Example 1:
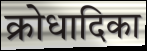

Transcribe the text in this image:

क्रोधादिका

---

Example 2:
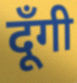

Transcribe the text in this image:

दूँगी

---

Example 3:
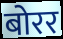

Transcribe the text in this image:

बोरर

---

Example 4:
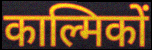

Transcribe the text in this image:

काल्मिकों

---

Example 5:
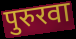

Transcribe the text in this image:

पुरुरवा